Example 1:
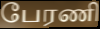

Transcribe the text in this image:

பேரணி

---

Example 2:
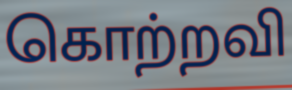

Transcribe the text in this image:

கொற்றவி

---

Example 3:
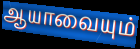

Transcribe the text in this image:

ஆயாவையும்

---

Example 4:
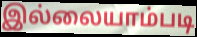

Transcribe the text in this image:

இல்லையாம்படி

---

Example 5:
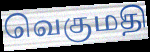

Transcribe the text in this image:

வெகுமதி